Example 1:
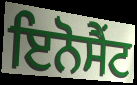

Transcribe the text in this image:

ਇਨੋਸੈਂਟ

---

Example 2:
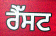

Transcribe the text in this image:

ਰੈੱਸਟ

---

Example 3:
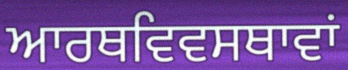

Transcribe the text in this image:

ਆਰਥਵਿਵਸਥਾਵਾਂ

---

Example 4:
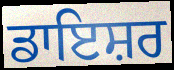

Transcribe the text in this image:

ਡਾਇਸ਼ਰ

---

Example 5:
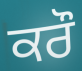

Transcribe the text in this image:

ਕਰੌ